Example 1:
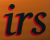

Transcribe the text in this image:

irs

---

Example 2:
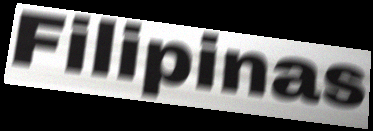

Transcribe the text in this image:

Filipinas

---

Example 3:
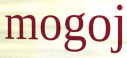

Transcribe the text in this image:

mogoj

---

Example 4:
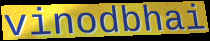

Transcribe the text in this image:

vinodbhai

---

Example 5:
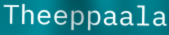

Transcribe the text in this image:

Theeppaala